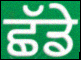
ਛੱਡੇ